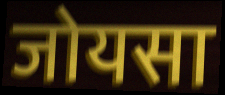
जोयसा